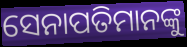
ସେନାପତିମାନଙ୍କୁ